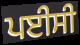
ਪਈਸੀ